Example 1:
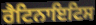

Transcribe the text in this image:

ਰੈਟਿਨਾਇਟਿਸ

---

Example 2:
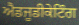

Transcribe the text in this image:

ਐਡਜੂਡੀਕੇਟਿੰਗ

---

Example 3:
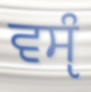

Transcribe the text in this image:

ਵਸੵੰ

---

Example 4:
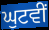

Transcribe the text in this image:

ਘੁਟਵੀਂ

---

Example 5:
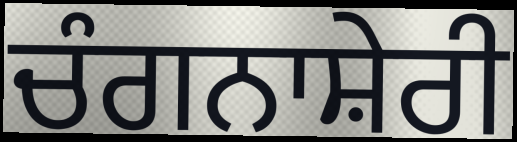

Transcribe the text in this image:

ਚੰਗਨਾਸ਼ੇਰੀ